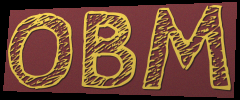
OBM